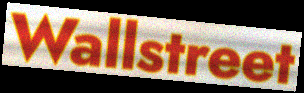
Wallstreet